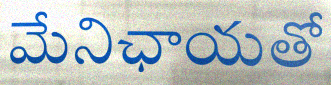
మేనిఛాయతో